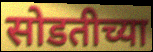
सोडतीच्या